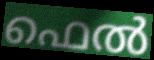
ഫെൽ